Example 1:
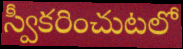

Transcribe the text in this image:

స్వీకరించుటలో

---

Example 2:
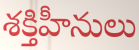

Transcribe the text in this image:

శక్తిహీనులు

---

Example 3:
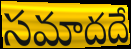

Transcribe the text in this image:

సమాదదే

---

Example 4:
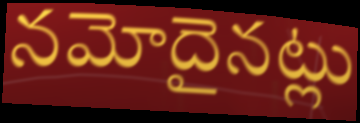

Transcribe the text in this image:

నమోదైనట్లు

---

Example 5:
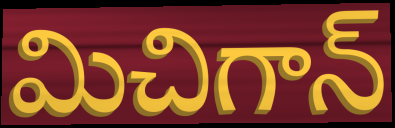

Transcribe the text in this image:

మిచిగాన్